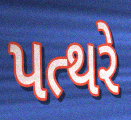
પત્થરે